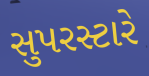
સુપરસ્ટારે